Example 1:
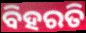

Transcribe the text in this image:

ବିହରତି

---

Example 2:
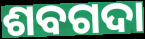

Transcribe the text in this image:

ଶବଗଦା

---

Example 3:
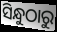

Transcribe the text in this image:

ସିନ୍ଧୁଠାରୁ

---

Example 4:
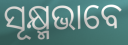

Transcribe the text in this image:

ସୂକ୍ଷ୍ମଭାବେ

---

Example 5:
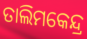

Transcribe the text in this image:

ତାଲିମକେନ୍ଦ୍ର